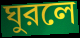
ঘুরলে